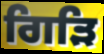
ਗਿੜਿ